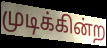
முடிக்கின்ற